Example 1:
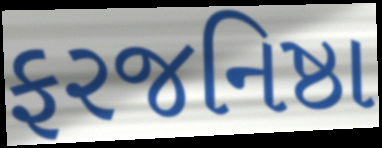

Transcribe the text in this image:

ફરજનિષ્ઠા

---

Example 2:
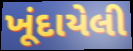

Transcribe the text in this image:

ખૂંદાયેલી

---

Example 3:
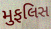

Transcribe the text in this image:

મુફલિસ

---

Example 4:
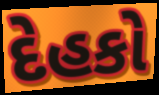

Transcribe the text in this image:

દેહકો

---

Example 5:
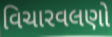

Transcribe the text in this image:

વિચારવલણો